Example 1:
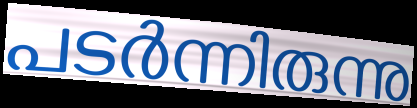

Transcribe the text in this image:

പടർന്നിരുന്നു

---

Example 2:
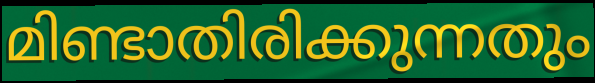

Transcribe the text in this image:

മിണ്ടാതിരിക്കുന്നതും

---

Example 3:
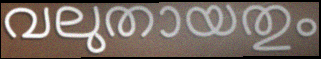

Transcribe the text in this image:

വലുതായതും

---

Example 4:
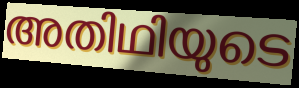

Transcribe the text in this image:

അതിഥിയുടെ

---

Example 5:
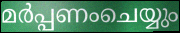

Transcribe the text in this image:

മർപ്പണംചെയ്യും